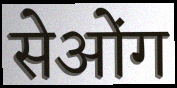
सेओंग